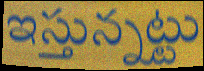
ఇస్తున్నట్టు